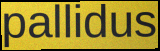
pallidus